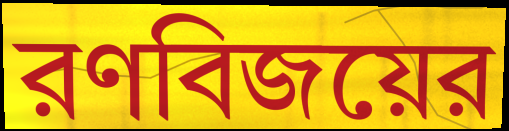
রণবিজয়ের